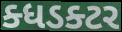
ક્ધડક્ટર